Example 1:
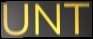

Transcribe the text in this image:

UNT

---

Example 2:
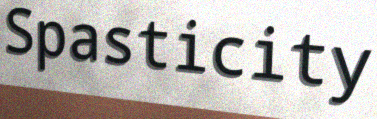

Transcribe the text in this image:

Spasticity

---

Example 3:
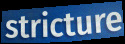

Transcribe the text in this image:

stricture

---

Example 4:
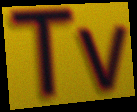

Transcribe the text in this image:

Tv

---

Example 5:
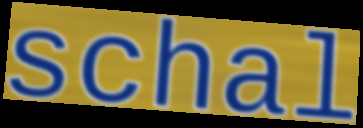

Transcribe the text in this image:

schal